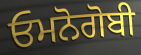
ਓਮਨੋਗੋਬੀ